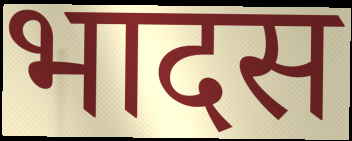
भादस